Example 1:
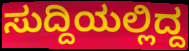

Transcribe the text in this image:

ಸುದ್ದಿಯಲ್ಲಿದ್ದ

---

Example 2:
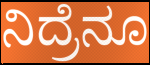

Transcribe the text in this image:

ನಿದ್ರೆನೂ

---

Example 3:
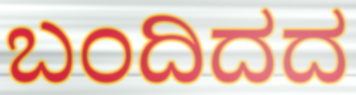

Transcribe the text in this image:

ಬಂದಿದದ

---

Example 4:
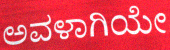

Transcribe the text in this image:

ಅವಳಾಗಿಯೇ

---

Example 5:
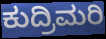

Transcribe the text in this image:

ಕುದ್ರಿಮರಿ